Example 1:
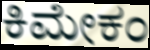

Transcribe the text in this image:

ಕಿಮೇಕಂ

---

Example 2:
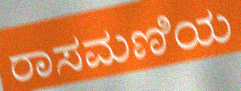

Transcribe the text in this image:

ರಾಸಮಣಿಯ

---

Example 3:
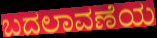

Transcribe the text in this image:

ಬದಲಾವಣೆಯ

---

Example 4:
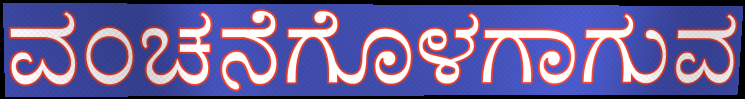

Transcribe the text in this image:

ವಂಚನೆಗೊಳಗಾಗುವ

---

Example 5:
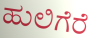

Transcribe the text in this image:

ಹುಲಿಗೆರೆ